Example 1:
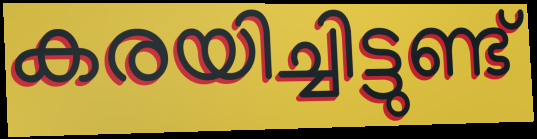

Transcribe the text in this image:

കരയിച്ചിട്ടുണ്ട്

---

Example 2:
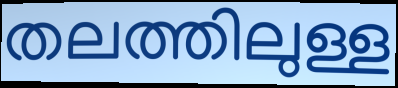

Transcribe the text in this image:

തലത്തിലുള്ള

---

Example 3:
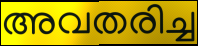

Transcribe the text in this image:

അവതരിച്ച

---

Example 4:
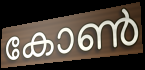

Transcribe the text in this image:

കോൺ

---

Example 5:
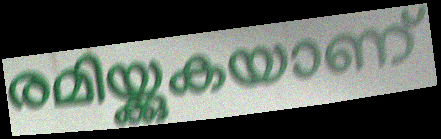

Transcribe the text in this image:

രമിയ്ക്കുകയാണ്